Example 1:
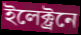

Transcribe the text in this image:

ইলেক্ট্ৰনে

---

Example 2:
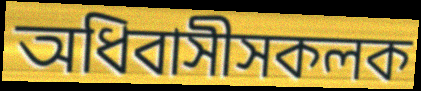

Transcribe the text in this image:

অধিবাসীসকলক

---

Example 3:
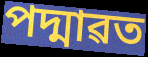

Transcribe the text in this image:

পদ্মাৱত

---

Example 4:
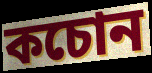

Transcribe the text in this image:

কচোন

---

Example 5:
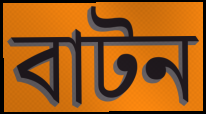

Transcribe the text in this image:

বাটন